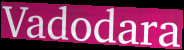
Vadodara